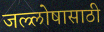
जल्लोषासाठी